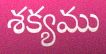
శక్యము